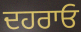
ਦਹਰਾਓ